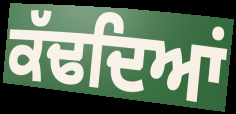
ਕੱਢਦਿਆਂ